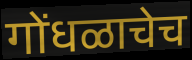
गोंधळाचेच